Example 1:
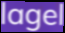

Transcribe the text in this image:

lagel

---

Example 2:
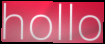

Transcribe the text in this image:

hollo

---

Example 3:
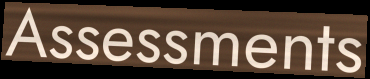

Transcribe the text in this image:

Assessments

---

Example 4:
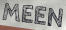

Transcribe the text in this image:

MEEN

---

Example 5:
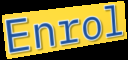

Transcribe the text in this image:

Enrol